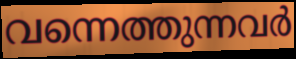
വന്നെത്തുന്നവർ